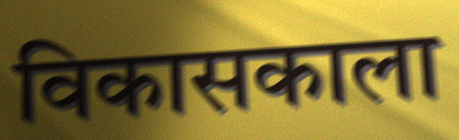
विकासकाला